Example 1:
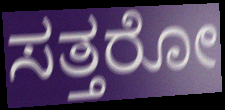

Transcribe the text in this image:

ಸತ್ತರೋ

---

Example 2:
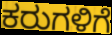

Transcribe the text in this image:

ಕರುಗಳಿಗೆ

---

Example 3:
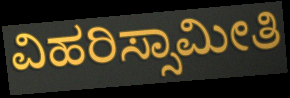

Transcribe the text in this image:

ವಿಹರಿಸ್ಸಾಮೀತಿ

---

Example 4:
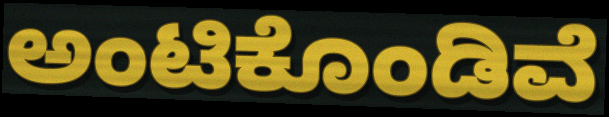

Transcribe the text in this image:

ಅಂಟಿಕೊಂಡಿವೆ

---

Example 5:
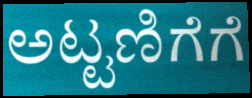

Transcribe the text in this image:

ಅಟ್ಟಣಿಗೆಗೆ